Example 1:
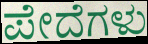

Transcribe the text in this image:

ಪೇದೆಗಳು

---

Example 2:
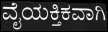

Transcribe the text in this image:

ವೈಯಕ್ತಿಕವಾಗಿ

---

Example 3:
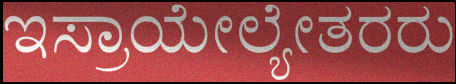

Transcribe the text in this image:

ಇಸ್ರಾಯೇಲ್ಯೇತರರು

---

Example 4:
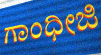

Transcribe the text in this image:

ಗಾಂಧೀಜಿ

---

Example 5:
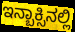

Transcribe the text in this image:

ಇನ್ಬಾಕ್ಸಿನಲ್ಲಿ